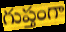
గుప్తంగా